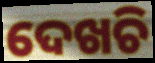
ଦେଖଚି